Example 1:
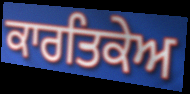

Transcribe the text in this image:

ਕਾਰਤਿਕੇਅ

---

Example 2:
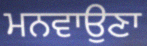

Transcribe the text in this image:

ਮਨਵਾਉਣਾ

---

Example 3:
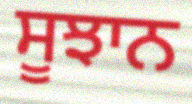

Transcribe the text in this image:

ਸੂਝਾਨ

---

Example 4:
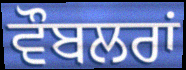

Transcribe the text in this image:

ਵੌਬਲਰਾਂ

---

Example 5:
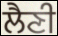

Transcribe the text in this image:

ਲੈਣੀ